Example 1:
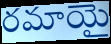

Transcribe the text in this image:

రమాయై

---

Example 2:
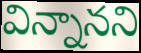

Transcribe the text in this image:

విన్నానని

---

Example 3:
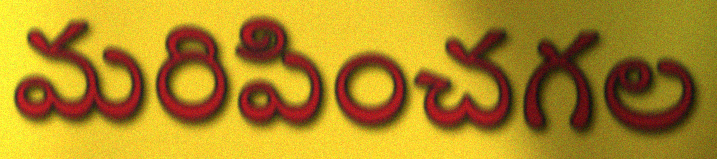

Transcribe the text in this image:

మరిపించగల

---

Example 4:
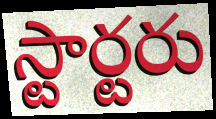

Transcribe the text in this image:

స్టార్టరు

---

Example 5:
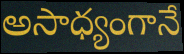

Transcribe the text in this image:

అసాధ్యంగానే